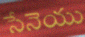
సేనెయు